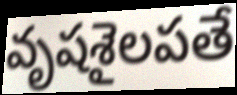
వృషశైలపతే